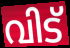
വിട്